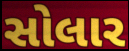
સોલાર